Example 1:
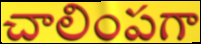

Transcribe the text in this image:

చాలింపగా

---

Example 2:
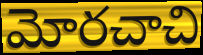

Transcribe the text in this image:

మోరచాచి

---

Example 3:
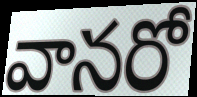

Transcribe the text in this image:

వానరో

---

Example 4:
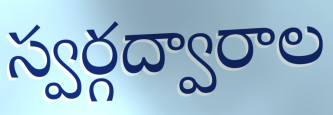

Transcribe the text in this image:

స్వర్గద్వారాల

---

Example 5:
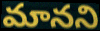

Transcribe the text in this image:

మానని